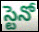
స్టెనో